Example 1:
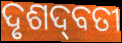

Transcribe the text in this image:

ଦୃଶଦ୍‌ବତୀ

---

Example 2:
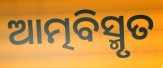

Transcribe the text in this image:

ଆତ୍ମବିସ୍ମୃତ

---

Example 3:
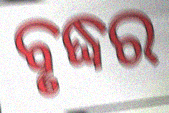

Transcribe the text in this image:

ବୃଦ୍ଧର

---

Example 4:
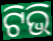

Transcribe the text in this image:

ଟିଭି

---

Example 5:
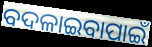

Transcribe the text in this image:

ବଦଳାଇବାପାଇଁ